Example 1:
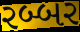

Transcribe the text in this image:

રબ્બર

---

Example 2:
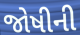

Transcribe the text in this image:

જોષીની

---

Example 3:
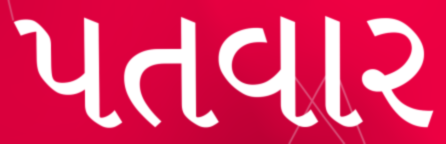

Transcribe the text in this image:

પતવાર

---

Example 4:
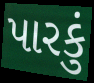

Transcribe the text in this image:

પારકું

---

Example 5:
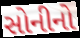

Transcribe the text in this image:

સોનીનો